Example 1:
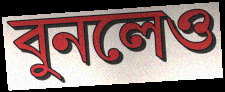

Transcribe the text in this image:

বুনলেও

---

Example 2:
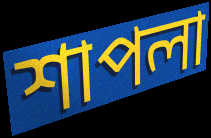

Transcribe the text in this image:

শাপলা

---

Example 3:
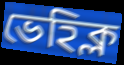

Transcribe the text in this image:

ভেহিক্ল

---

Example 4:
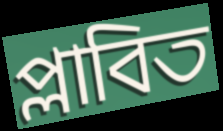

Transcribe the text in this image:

প্লাবিত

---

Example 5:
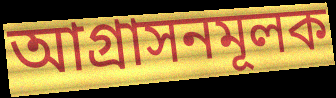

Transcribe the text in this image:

আগ্রাসনমূলক